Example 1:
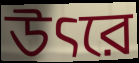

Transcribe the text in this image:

উৎরে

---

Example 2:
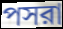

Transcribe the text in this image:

পসরা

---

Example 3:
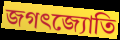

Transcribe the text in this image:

জগৎজ্যোতি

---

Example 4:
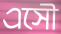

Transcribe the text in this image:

এসৌ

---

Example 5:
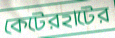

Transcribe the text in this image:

কেটেরহাটের